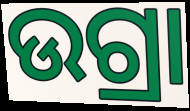
ଉଗ୍ରା